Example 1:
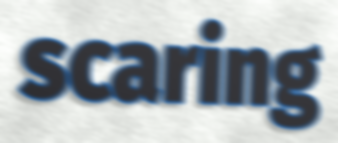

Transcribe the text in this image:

scaring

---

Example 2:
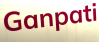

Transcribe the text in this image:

Ganpati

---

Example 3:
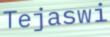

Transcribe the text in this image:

Tejaswi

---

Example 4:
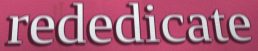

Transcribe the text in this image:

rededicate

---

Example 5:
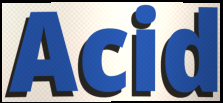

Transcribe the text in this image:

Acid